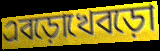
এবড়োখেবড়ো